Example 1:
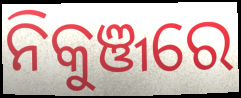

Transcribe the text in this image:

ନିକୁଞ୍ଜରେ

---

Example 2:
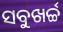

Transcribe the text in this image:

ସବୁଖର୍ଚ୍ଚ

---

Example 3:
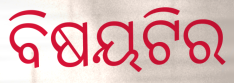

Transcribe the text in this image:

ବିଷୟଟିର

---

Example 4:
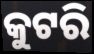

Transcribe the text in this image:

କୁଟରି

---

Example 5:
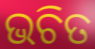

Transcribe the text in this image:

ଭଚିତ